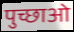
पुच्छाओ